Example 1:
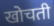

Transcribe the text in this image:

खोचती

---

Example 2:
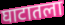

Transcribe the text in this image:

घाटातला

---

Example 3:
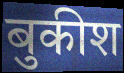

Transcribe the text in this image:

बुकीश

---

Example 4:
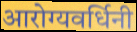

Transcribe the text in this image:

आरोग्यवर्धिनी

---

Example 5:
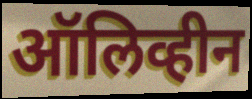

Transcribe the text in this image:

ऑलिव्हीन